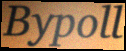
Bypoll